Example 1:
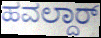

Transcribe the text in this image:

ಹವಲ್ದಾರ್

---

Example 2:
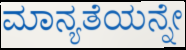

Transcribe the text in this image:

ಮಾನ್ಯತೆಯನ್ನೇ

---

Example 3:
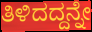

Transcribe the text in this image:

ತಿಳಿದದ್ದನ್ನೇ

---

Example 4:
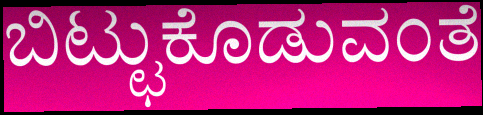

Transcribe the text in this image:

ಬಿಟ್ಟುಕೊಡುವಂತೆ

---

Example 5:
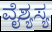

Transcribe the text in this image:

ವೈಶ್ಯಸ್ಯ